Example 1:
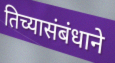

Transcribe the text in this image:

तिच्यासंबंधाने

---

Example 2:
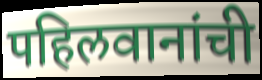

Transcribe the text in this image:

पहिलवानांची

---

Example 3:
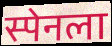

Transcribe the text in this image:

स्पेनला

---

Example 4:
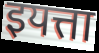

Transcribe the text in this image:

इयत्ता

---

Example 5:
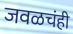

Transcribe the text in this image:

जवळचंही